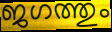
ജഗത്തും